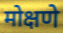
मोक्षणे